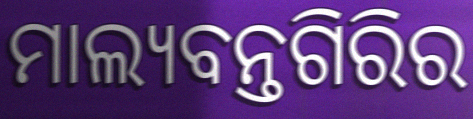
ମାଲ୍ୟବନ୍ତଗିରିର